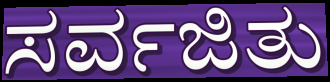
ಸರ್ವಜಿತು